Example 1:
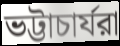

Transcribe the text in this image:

ভট্টাচার্যরা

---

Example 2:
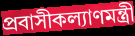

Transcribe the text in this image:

প্রবাসীকল্যাণমন্ত্রী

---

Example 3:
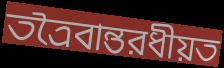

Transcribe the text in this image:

তত্রৈবান্তরধীয়ত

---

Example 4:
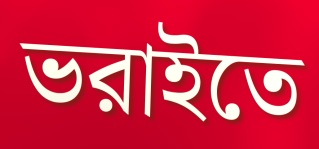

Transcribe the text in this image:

ভরাইতে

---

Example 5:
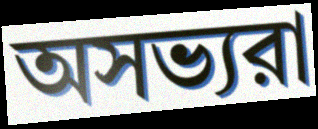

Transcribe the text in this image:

অসভ্যরা